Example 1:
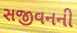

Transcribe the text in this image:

સજીવનની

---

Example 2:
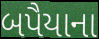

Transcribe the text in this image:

બપૈયાના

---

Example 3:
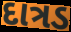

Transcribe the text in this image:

દાત્રડ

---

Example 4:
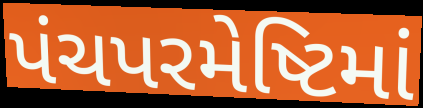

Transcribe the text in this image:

પંચપરમેષ્ટિમાં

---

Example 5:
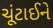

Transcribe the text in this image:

ચૂંટાઈને